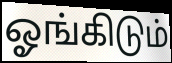
ஓங்கிடும்